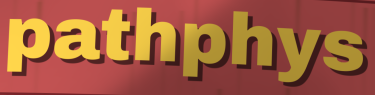
pathphys